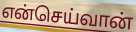
என்செய்வான்